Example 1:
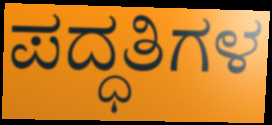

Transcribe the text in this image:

ಪದ್ಧತಿಗಳ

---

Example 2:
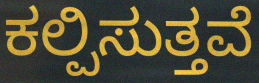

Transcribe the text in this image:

ಕಲ್ಪಿಸುತ್ತವೆ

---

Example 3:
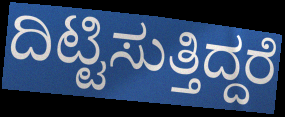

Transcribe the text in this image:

ದಿಟ್ಟಿಸುತ್ತಿದ್ದರೆ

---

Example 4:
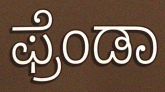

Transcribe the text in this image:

ಫ್ರೆಂಡಾ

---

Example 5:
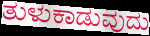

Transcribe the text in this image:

ತುಳುಕಾಡುವುದು